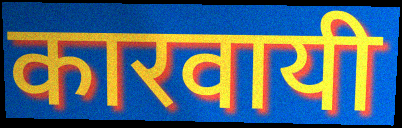
कारवायी